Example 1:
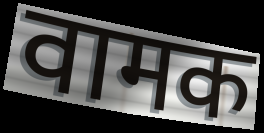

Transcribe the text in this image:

वामक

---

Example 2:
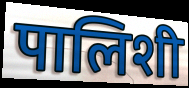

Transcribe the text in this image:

पालिशी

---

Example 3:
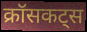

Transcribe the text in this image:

क्रॉसकट्स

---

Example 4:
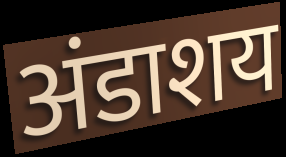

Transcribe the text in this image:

अंडाशय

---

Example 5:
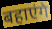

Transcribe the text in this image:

बहाएंगे